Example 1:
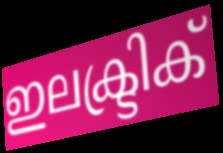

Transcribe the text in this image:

ഇലക്ട്രിക്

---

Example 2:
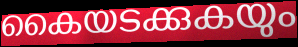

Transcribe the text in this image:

കൈയടക്കുകയും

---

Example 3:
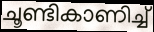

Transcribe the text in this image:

ചൂണ്ടികാണിച്ച്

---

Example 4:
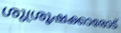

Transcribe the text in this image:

ശുശ്രൂഷക്കാരോട്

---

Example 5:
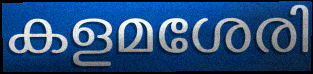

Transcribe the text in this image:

കളമശേരി